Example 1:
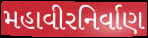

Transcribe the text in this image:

મહાવીરનિર્વાણ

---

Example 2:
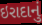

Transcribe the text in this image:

ઇરાદાનું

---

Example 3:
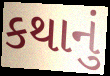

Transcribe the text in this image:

કથાનું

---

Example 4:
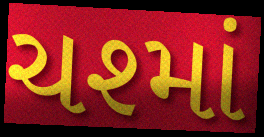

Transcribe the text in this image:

ચશ્માં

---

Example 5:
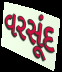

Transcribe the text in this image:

વરસૂંદ